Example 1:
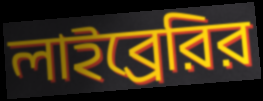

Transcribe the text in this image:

লাইব্রেরির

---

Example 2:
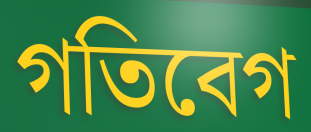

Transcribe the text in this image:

গতিবেগ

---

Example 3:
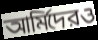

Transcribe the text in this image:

আর্মিদেরও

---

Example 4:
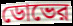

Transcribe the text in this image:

ডোভের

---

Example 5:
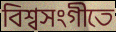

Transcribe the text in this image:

বিশ্বসংগীতে